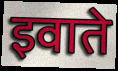
इवाते